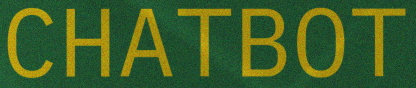
CHATBOT